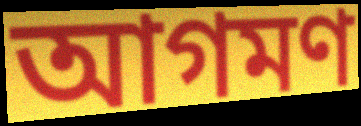
আগমণ